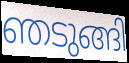
ഞടുങ്ങി